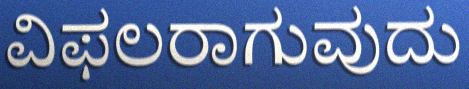
ವಿಫಲರಾಗುವುದು